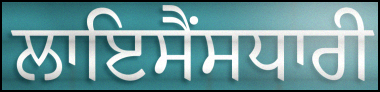
ਲਾਇਸੈਂਸਧਾਰੀ